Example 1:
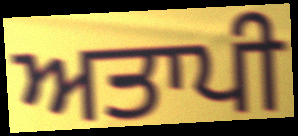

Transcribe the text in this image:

ਅਤਾਪੀ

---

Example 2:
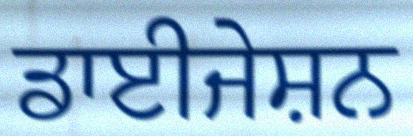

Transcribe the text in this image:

ਡਾਈਜੇਸ਼ਨ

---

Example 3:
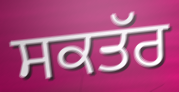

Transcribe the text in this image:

ਸਕਤੱਰ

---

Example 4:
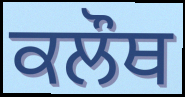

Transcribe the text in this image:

ਕਲੌਥ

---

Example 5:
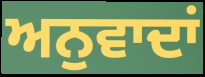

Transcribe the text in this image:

ਅਨੁਵਾਦਾਂ